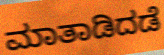
ಮಾತಾಡಿದಡೆ